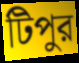
টিপুর